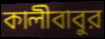
কালীবাবুর